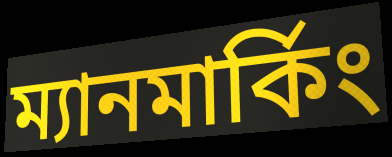
ম্যানমার্কিং